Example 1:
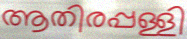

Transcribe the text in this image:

ആതിരപ്പള്ളി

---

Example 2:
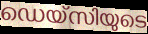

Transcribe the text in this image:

ഡെയ്സിയുടെ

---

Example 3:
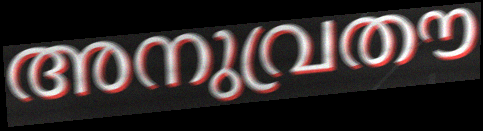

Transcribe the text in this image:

അനുവ്രതൗ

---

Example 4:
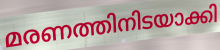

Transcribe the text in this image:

മരണത്തിനിടയാക്കി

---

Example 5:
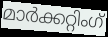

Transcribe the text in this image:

മാർക്കറ്റിംഗ്